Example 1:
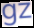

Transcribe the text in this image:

gz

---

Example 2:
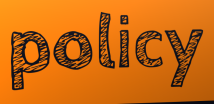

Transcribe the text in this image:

policy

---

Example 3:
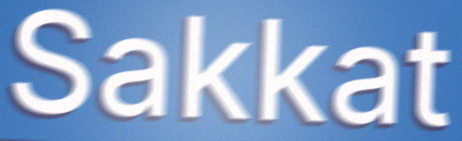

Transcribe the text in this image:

Sakkat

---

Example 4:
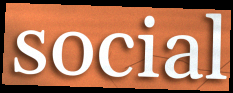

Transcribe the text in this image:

social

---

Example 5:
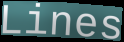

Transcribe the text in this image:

Lines